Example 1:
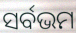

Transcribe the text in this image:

ସର୍ବଭମ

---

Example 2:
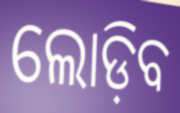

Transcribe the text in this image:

ଲୋଡ଼ିବ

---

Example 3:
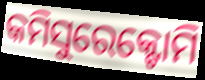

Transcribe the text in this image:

କମିସୁରେକ୍ଟୋମି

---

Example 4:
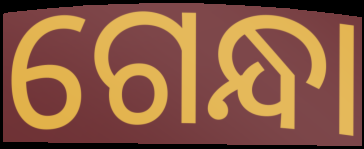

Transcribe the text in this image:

ଗେନ୍ଧା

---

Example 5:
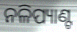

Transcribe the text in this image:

ନଳିପ୍ୟାଣ୍ଟ